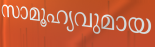
സാമൂഹ്യവുമായ